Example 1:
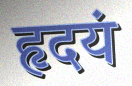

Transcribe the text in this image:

हृदयं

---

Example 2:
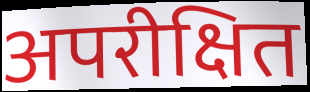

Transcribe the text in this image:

अपरीक्षित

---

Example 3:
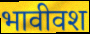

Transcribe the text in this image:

भावीवश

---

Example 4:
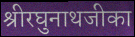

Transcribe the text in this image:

श्रीरघुनाथजीका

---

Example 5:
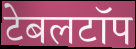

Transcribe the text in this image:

टेबलटॉप